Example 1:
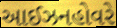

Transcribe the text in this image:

આઈઝનહોવરે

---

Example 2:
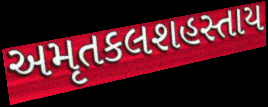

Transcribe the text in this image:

અમૃતકલશહસ્તાય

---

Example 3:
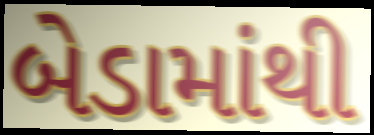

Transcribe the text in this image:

બેડામાંથી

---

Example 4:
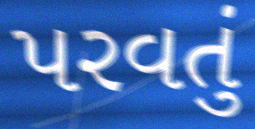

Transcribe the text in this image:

પરવતું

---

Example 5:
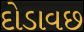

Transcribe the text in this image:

દોડાવછ